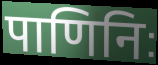
पाणिनिः